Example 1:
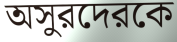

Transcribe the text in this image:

অসুরদেরকে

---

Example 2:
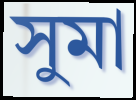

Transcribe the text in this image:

সুমা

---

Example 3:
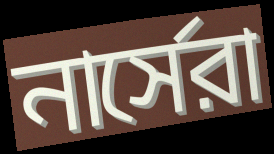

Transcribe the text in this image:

নার্সেরা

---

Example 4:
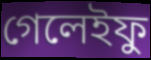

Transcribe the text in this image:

গেলেইফু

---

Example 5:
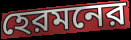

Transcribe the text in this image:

হেরমনের